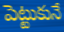
పెట్టుకునే